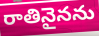
రాతినైనను